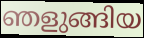
ഞളുങ്ങിയ